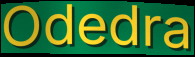
Odedra